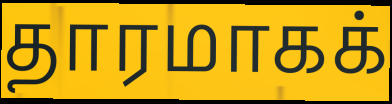
தாரமாகக்